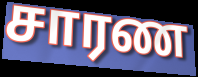
சாரண